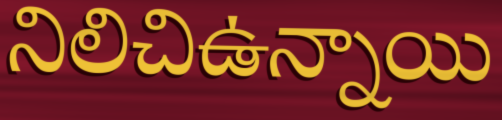
నిలిచిఉన్నాయి